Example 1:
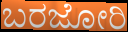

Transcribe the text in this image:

ಬರಜೋರಿ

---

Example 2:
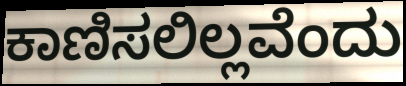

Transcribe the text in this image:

ಕಾಣಿಸಲಿಲ್ಲವೆಂದು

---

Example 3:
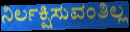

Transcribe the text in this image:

ನಿರ್ಲಕ್ಷಿಸುವಂತಿಲ್ಲ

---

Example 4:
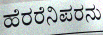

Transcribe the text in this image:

ಹೆರರೆನಿಪರನು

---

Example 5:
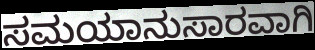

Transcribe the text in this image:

ಸಮಯಾನುಸಾರವಾಗಿ